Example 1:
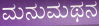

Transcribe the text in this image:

ಮನುಮಥನ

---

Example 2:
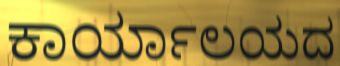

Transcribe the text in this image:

ಕಾರ್ಯಾಲಯದ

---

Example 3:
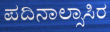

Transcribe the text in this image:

ಪದಿನಾಲ್ಸಾಸಿರ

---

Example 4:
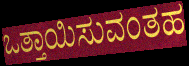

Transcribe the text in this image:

ಒತ್ತಾಯಿಸುವಂತಹ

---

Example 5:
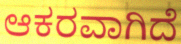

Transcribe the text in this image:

ಆಕರವಾಗಿದೆ